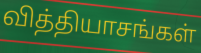
வித்தியாசங்கள்